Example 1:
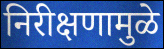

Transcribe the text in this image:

निरीक्षणामुळे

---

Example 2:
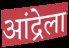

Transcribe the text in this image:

आंद्रेला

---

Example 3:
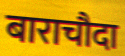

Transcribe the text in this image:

बाराचौदा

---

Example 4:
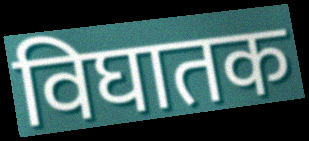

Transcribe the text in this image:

विघातक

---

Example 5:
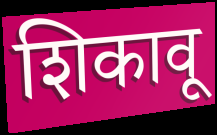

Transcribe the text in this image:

शिकावू